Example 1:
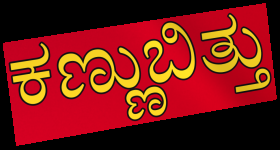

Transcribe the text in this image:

ಕಣ್ಣುಬಿತ್ತು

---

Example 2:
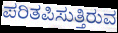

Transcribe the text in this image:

ಪರಿತಪಿಸುತ್ತಿರುವ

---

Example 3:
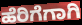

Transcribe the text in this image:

ಹೆರಿಗೆಗಾಗಿ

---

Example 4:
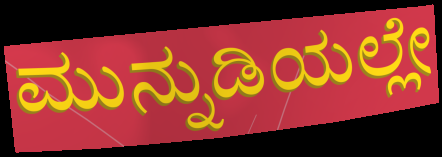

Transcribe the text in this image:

ಮುನ್ನುಡಿಯಲ್ಲೇ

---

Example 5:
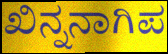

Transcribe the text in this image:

ಖಿನ್ನನಾಗಿಪ